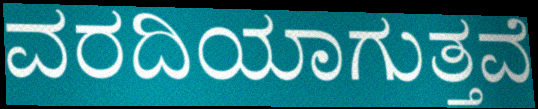
ವರದಿಯಾಗುತ್ತವೆ